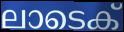
ലാടെക്